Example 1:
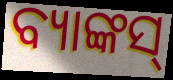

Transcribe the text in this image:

ବ୍ୟାଙ୍କସ୍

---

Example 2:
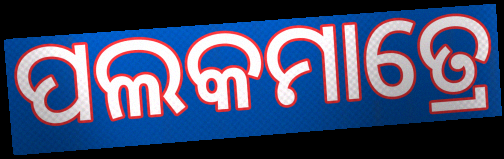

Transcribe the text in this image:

ପଲକମାତ୍ରେ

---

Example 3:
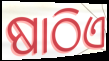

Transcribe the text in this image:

ଷାଠିଏ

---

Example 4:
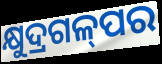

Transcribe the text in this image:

କ୍ଷୁଦ୍ରଗଳ୍‌ପର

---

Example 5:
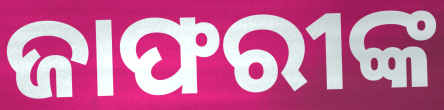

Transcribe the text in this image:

ଜାଫରୀଙ୍କ